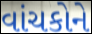
વાંચકોને